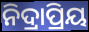
ନିଦ୍ରାପ୍ରିୟ